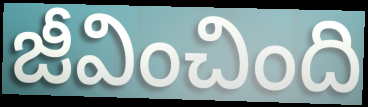
జీవించింది